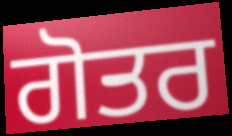
ਗੋਤਰ